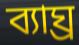
ব্যাঘ্ৰ